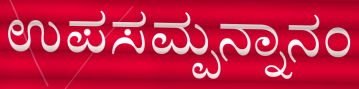
ಉಪಸಮ್ಪನ್ನಾನಂ